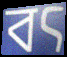
বৎ